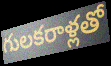
గులకరాళ్లతో